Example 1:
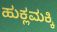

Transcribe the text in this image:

ಹುಕ್ಲಮಕ್ಕಿ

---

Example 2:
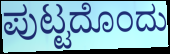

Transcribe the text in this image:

ಪುಟ್ಟದೊಂದು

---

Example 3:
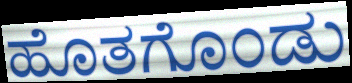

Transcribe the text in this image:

ಹೊತಗೊಂಡು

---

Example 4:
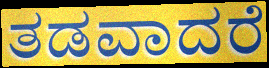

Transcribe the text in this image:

ತಡವಾದರೆ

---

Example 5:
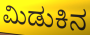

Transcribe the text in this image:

ಮಿಡುಕಿನ